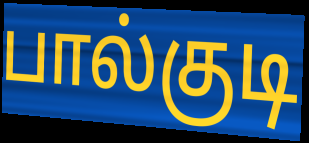
பால்குடி